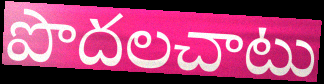
పొదలచాటు